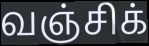
வஞ்சிக்